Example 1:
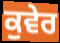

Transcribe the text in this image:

ਕੁਵੇਰ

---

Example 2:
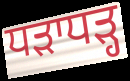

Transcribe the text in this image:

ਧੜਾਧੜ੍ਹ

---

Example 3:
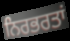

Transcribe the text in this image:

ਨਿਰਭਰਤਾਂ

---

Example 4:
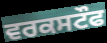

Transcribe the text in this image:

ਵਰਕਸਟੌਫ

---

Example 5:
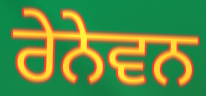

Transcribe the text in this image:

ਰੇਨੇਵਨ